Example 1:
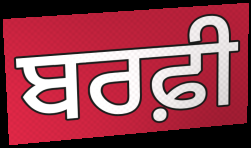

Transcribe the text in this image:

ਬਰਫ਼ੀ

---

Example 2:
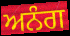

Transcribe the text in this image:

ਅਨੰਗ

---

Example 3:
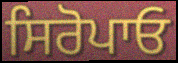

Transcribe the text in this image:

ਸਿਰੋਪਾਓ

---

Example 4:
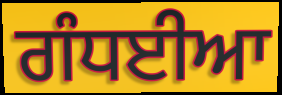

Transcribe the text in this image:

ਗੰਧਈਆ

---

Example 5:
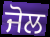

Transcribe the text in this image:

ਜੋਲ